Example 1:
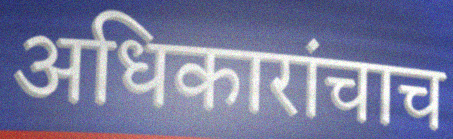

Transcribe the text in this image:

अधिकारांचाच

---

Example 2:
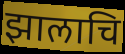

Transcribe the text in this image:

झालाचि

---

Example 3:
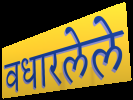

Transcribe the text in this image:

वधारलेले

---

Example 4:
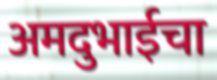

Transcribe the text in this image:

अमदुभाईचा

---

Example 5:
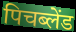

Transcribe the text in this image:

पिचब्लेंड